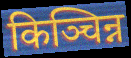
किञ्चिन्न